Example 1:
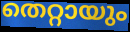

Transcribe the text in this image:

തെറ്റായും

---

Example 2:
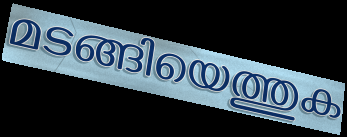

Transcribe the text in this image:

മടങ്ങിയെത്തുക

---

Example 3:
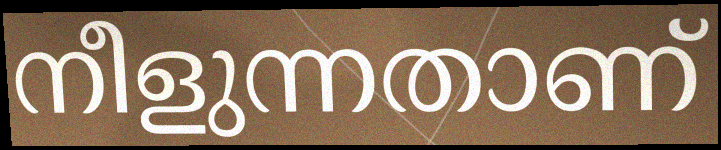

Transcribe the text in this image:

നീളുന്നതാണ്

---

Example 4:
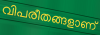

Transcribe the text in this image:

വിപരീതങ്ങളാണ്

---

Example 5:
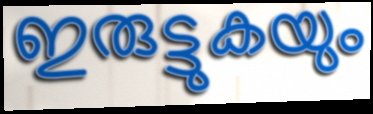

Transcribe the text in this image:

ഇരുട്ടുകയും